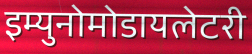
इम्युनोमोडायलेटरी